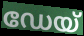
ഡേയ്